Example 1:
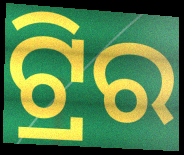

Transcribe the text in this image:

ଟ୍ରିର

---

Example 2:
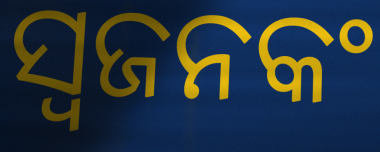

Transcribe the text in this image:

ସ୍ଵଜନକଂ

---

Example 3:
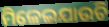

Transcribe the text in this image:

ମିଳେଇଯାଉଚି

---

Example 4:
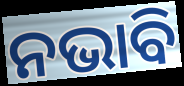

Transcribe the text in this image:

ନଭାବି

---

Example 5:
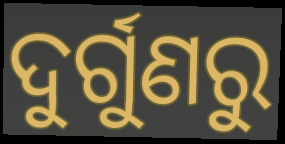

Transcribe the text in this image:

ଦୁର୍ଗୁଣରୁ